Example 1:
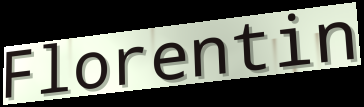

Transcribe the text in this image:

Florentin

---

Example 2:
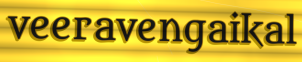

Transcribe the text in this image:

veeravengaikal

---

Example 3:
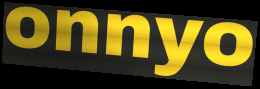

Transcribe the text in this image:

onnyo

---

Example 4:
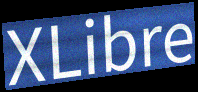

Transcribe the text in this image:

XLibre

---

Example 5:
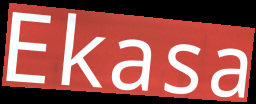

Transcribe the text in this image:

Ekasa